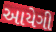
આયેગી